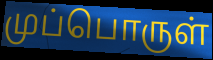
முப்பொருள்